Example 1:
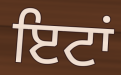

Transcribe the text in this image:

ਇਟਾਂ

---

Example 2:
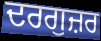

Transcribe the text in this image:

ਦਰਗੁਜ਼ਰ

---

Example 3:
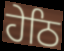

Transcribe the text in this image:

ਹੇਠਿ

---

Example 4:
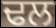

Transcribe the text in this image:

ਢਲ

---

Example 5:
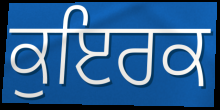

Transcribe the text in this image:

ਕੁਇਰਕ